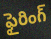
ఫైరింగ్